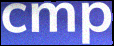
cmp